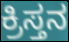
ಕ್ರಿಸ್ತನ